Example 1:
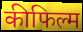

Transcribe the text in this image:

कीफिल्म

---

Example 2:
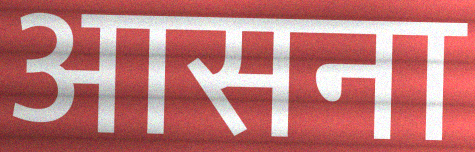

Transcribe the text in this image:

आसना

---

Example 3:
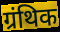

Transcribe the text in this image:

ग्रंथिक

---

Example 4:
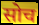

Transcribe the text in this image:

सोच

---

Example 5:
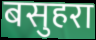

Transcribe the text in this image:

बसुहरा